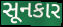
સૂનકાર